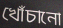
খোঁচানো